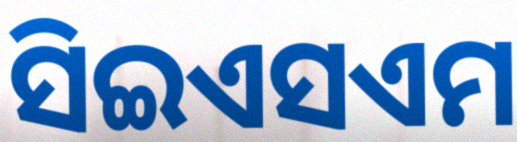
ସିଇଏସଏମ